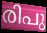
രിപു